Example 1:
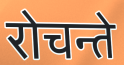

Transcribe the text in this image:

रोचन्ते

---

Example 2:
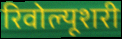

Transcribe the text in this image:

रिवोल्यूशरी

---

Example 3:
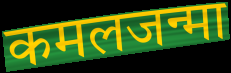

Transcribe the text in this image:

कमलजन्मा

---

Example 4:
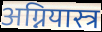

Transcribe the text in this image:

अग्नियास्त्र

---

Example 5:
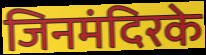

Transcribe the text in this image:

जिनमंदिरके